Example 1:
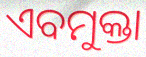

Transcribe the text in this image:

ଏବମୁକ୍ତା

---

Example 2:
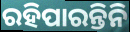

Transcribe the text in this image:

ରହିପାରନ୍ତିନି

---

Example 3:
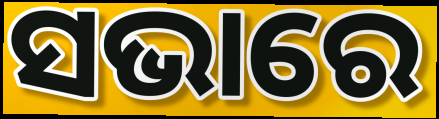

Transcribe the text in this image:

ସଭାରେ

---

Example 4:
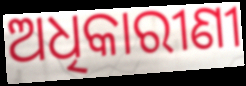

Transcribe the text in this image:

ଅଧିକାରୀଣୀ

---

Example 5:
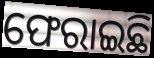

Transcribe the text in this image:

ଫେରାଇଛି